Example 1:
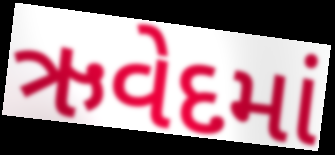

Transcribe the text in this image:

ઋવેદમાં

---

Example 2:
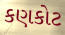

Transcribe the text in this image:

કણકોટ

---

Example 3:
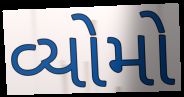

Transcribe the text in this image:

વ્યોમો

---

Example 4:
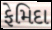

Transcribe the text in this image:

ફેમિદા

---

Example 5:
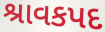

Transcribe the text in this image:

શ્રાવકપદ